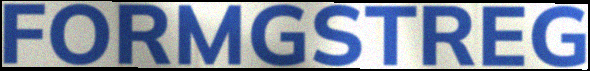
FORMGSTREG